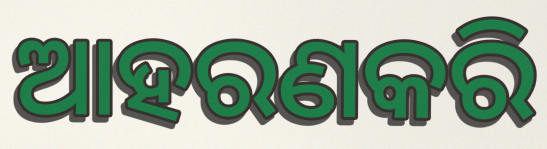
ଆହରଣକରି